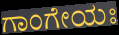
ಗಾಂಗೇಯಃ